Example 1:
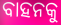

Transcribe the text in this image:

ବାହନକୁ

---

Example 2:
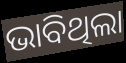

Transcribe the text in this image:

ଭାବିଥିଲା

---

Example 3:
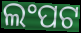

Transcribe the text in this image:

ଲଂପଟ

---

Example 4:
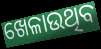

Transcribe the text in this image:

ଖେଳାଉଥିବ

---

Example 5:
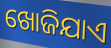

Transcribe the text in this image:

ଖୋଜିଯାଏ